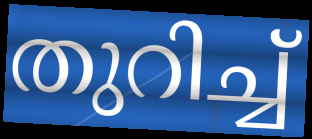
തുറിച്ച്